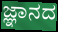
ಜ್ಞಾನದ